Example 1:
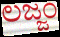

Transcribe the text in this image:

ಲಜ್ಜಂ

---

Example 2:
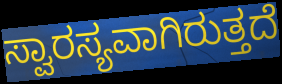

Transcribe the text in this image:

ಸ್ವಾರಸ್ಯವಾಗಿರುತ್ತದೆ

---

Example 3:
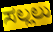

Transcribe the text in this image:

ಸಲ್ಲಲು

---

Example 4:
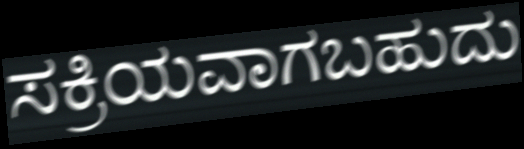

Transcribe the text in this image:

ಸಕ್ರಿಯವಾಗಬಹುದು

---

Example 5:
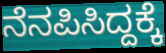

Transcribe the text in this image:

ನೆನಪಿಸಿದ್ದಕ್ಕೆ